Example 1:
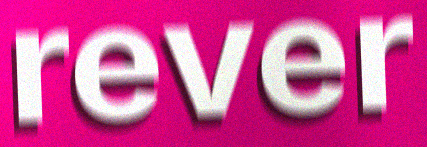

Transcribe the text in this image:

rever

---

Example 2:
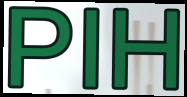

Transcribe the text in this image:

PIH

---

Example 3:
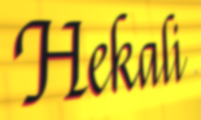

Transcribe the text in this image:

Hekali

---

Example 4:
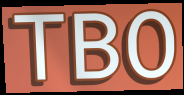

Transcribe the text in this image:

TBO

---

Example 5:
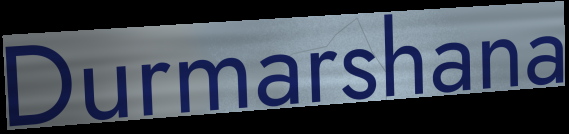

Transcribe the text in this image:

Durmarshana